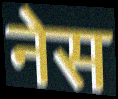
नेस